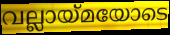
വല്ലായ്മയോടെ